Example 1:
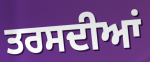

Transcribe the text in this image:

ਤਰਸਦੀਆਂ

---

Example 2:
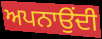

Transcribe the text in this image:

ਅਪਨਾਉਂਦੀ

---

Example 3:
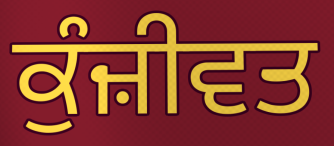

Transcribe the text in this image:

ਕੁੰਜ਼ੀਵਤ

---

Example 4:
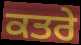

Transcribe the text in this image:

ਕਤਰੇ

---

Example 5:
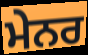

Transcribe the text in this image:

ਮੇਨਰ